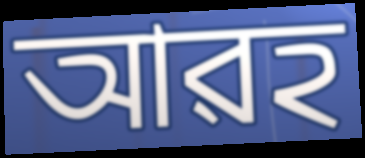
আৱহ